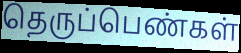
தெருப்பெண்கள்